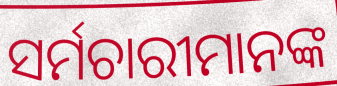
ସର୍ମଚାରୀମାନଙ୍କ